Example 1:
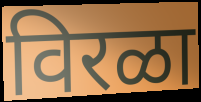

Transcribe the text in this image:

विरळा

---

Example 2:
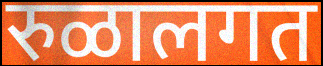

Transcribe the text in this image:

रुळालगत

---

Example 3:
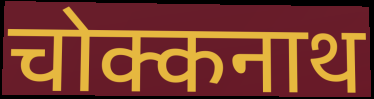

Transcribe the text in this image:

चोक्कनाथ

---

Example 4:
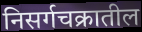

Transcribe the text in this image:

निसर्गचक्रातील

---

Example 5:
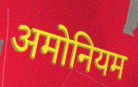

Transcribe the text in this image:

अमोनियम